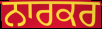
ਨਾਰਕਰ